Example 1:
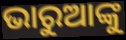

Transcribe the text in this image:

ଭାରୁଆଙ୍କୁ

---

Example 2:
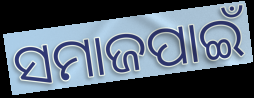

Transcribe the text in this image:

ସମାଜପାଇଁ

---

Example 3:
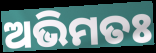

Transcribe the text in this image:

ଅଭିମତଃ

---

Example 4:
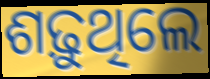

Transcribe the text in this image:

ଶଢ଼ୁଥିଲେ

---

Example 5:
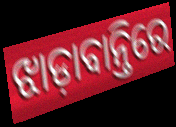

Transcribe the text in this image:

ଝାଡ଼ାବାନ୍ତିରେ